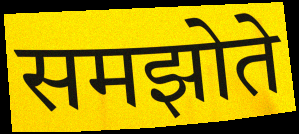
समझोते